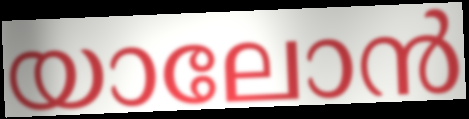
യാലോൻ